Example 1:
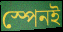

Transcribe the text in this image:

স্পেনই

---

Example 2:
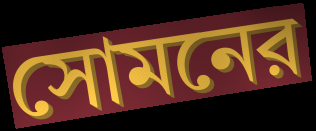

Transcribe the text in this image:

সোমনের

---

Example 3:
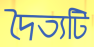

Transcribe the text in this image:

দৈত্যটি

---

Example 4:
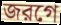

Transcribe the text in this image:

জরগে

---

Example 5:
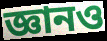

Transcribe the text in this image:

জ্ঞানও